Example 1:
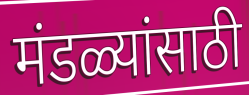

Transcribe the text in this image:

मंडळ्यांसाठी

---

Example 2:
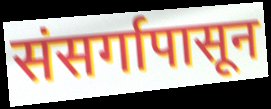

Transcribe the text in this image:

संसर्गापासून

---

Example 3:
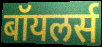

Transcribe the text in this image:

बॉयलर्स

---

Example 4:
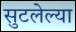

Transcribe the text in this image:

सुटलेल्या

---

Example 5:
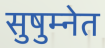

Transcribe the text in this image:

सुषुम्नेत